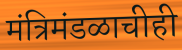
मंत्रिमंडळाचीही